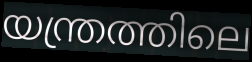
യന്ത്രത്തിലെ